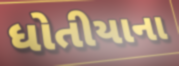
ધોતીયાના